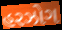
હરઝોગ